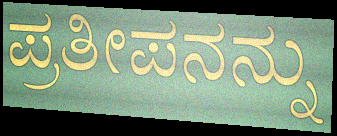
ಪ್ರತೀಪನನ್ನು